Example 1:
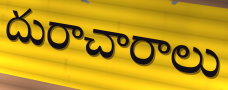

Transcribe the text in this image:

దురాచారాలు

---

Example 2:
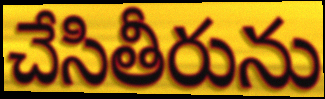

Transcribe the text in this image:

చేసితీరును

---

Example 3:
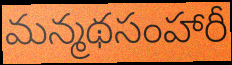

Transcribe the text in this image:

మన్మథసంహారీ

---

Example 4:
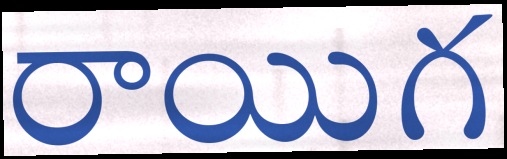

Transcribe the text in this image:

రాయిగ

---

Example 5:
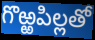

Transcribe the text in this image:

గొఱ్ఱపిల్లతో